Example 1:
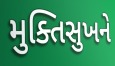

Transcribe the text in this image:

મુક્તિસુખને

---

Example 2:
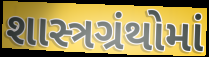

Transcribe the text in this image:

શાસ્ત્રગ્રંથોમાં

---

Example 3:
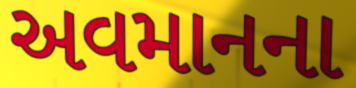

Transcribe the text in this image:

અવમાનના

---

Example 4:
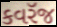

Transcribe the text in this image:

કવરૅજ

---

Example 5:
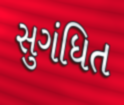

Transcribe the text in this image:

સુગંધિત